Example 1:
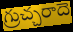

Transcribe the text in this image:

గ్రుచ్చరాదె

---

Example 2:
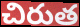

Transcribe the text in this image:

చిరుత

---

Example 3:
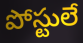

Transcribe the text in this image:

పోస్టులే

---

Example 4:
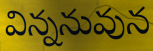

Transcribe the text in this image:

విన్ననువున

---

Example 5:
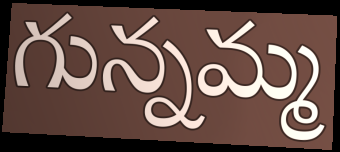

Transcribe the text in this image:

గున్నమ్మ